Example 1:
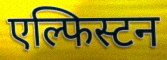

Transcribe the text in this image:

एल्फिस्टन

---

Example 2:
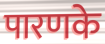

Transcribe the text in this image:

पारणके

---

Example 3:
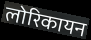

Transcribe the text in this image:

लोरिकायन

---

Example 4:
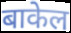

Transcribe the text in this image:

बाकेल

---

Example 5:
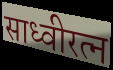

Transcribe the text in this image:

साध्वीरत्न